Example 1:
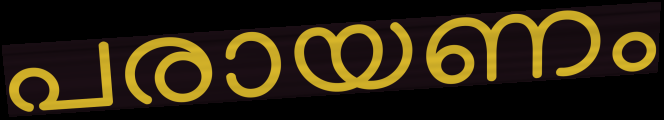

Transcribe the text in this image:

പരായണം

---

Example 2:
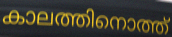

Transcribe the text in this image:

കാലത്തിനൊത്ത്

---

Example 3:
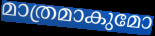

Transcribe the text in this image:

മാത്രമാകുമോ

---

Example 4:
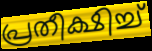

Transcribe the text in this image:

പ്രതീക്ഷിച്ച്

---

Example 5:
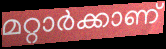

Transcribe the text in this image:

മറ്റാർക്കാണ്